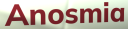
Anosmia